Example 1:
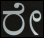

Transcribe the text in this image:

ರೇ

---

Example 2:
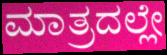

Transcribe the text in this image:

ಮಾತ್ರದಲ್ಲೇ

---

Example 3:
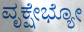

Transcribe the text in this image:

ವೃಕ್ಷೇಭ್ಯೋ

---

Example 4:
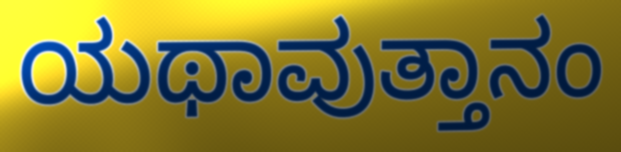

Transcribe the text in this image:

ಯಥಾವುತ್ತಾನಂ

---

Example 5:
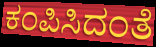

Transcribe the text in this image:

ಕಂಪಿಸಿದಂತೆ